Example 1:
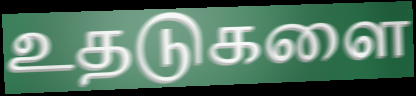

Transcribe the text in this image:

உதடுகளை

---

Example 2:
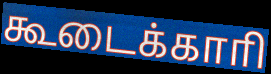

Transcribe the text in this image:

கூடைக்காரி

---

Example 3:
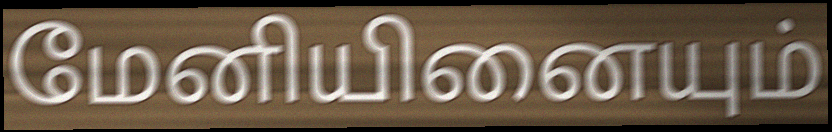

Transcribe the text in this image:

மேனியினையும்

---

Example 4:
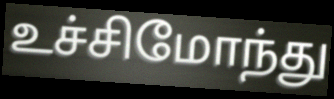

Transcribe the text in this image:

உச்சிமோந்து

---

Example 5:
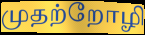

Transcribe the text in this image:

முதற்றோழி